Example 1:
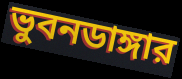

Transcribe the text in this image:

ভুবনডাঙ্গার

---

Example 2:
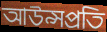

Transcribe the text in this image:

আউন্সপ্রতি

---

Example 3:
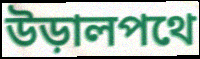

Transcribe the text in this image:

উড়ালপথে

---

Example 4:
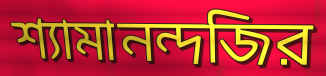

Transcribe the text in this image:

শ্যামানন্দজির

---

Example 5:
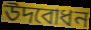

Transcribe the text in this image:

উদবোধন